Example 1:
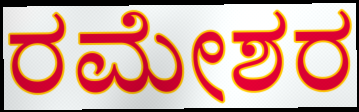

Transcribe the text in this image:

ರಮೇಶರ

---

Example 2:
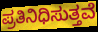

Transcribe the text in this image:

ಪ್ರತಿನಿಧಿಸುತ್ತವೆ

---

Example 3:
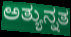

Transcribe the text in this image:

ಅತ್ಯುನ್ನತ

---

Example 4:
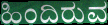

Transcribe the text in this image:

ಹಿಂದಿರುವ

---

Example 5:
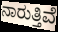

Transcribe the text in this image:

ನಾರುತ್ತಿವೆ